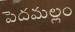
పెదమల్లం